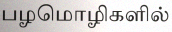
பழமொழிகளில்